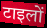
टाइलों